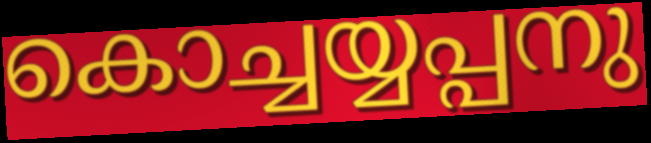
കൊച്ചയ്യപ്പനു